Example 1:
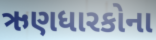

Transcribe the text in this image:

ઋણધારકોના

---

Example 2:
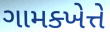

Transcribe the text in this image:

ગામક્ખેત્તે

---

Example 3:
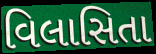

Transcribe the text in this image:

વિલાસિતા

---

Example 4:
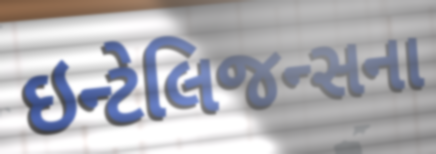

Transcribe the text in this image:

ઇન્ટેલિજન્સના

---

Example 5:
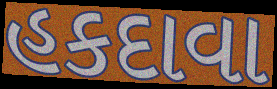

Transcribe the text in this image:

હકદાવા